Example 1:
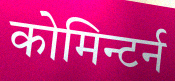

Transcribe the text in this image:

कोमिन्टर्न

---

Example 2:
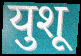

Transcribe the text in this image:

युशू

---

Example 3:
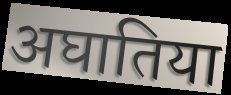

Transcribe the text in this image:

अघातिया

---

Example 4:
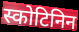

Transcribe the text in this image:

स्कोटिनिन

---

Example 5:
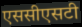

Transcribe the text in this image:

एससीएसटी